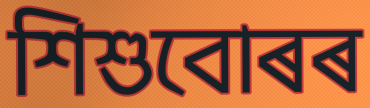
শিশুবোৰৰ